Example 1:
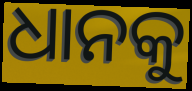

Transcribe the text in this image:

ଧାନକୁ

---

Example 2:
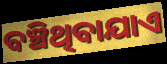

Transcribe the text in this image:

ବଞ୍ଚିଥିବାଯାଏ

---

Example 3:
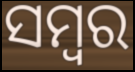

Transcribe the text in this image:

ସମ୍ବର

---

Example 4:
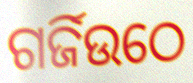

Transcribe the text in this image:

ଗର୍ଜିଉଠେ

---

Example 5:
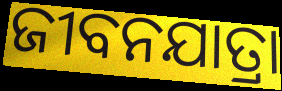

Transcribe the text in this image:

ଜୀବନଯାତ୍ରା